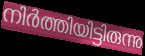
നിർത്തിയിട്ടിരുന്നു